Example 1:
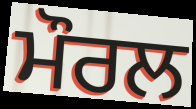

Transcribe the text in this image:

ਮੌਰਲ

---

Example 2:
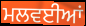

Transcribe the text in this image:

ਮਲਵਈਆਂ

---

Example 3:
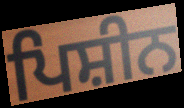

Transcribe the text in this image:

ਪਿਸ਼ੀਨ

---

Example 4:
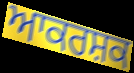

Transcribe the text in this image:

ਆਕਰਸ਼ਕ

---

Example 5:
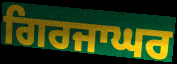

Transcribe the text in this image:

ਗਿਰਜਾਘਰ